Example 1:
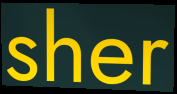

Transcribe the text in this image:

sher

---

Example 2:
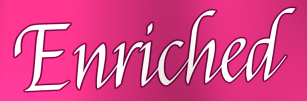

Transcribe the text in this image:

Enriched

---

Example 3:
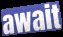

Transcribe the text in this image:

await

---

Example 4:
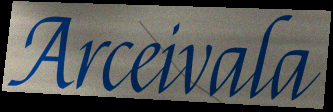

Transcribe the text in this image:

Arceivala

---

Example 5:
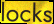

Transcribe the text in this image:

locks